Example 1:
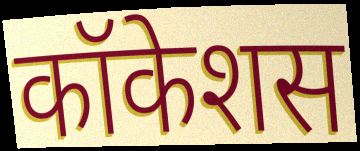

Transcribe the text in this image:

कॉकेशस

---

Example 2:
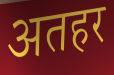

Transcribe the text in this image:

अतहर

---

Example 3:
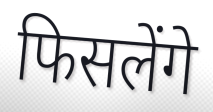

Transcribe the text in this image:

फिसलेंगे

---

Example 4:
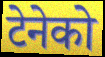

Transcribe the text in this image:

टेनेको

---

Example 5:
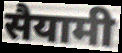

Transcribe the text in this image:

सैयामी